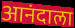
आनंदाला